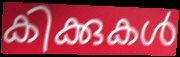
കിക്കുകൾ